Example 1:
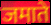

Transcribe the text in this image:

जमाते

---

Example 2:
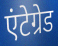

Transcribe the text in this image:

एंटेग्रेड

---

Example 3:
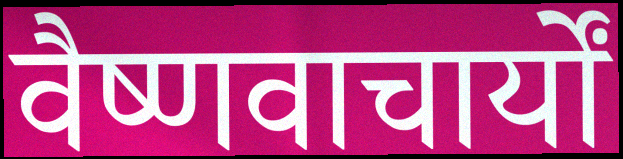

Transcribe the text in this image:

वैष्णवाचार्यों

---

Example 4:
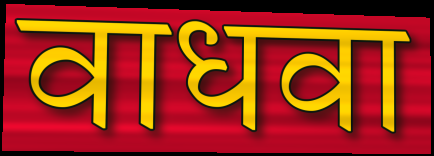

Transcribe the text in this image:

वाधवा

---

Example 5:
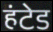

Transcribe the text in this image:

हंटेड